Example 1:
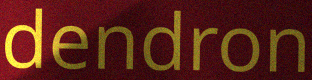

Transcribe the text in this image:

dendron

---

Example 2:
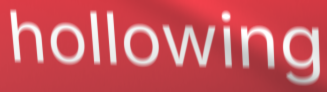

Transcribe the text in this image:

hollowing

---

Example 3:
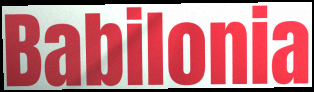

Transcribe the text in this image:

Babilonia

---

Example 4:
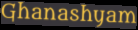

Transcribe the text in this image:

Ghanashyam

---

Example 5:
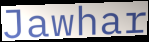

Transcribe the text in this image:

Jawhar